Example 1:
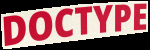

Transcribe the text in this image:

DOCTYPE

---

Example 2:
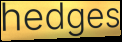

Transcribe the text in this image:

hedges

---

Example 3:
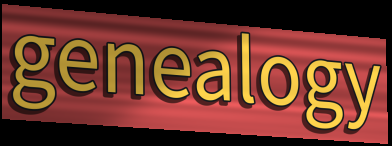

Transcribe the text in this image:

genealogy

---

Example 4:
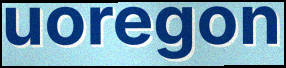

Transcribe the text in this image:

uoregon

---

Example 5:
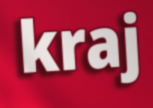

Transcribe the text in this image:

kraj